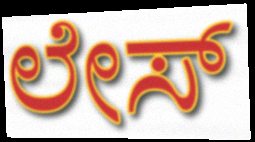
ಲೇಸ್